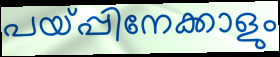
പയ്പ്പിനേക്കാളും